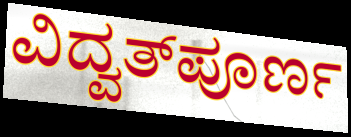
ವಿದ್ವತ್‌ಪೂರ್ಣ